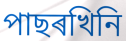
পাছৰখিনি